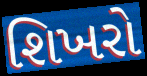
શિખરો